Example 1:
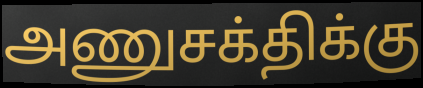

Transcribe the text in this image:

அணுசக்திக்கு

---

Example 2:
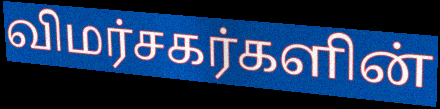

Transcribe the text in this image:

விமர்சகர்களின்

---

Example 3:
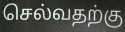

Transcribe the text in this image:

செல்வதற்கு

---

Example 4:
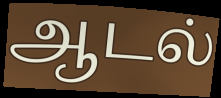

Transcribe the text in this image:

ஆடல்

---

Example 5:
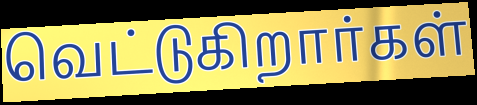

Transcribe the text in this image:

வெட்டுகிறார்கள்